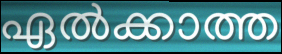
ഏൽക്കാത്ത